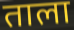
ताला